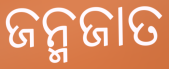
ଜନ୍ମଜାତ